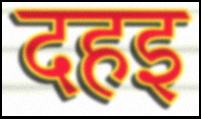
दहइ